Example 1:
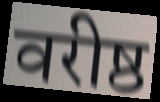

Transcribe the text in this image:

वरीष्ठ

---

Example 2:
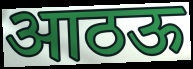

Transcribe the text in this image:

आठऊ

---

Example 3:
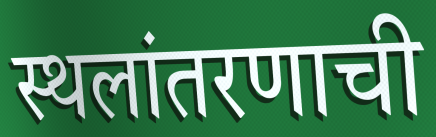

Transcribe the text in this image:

स्थलांतरणाची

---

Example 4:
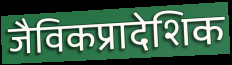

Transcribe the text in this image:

जैविकप्रादेशिक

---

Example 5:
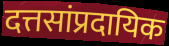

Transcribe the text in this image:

दत्तसांप्रदायिक